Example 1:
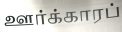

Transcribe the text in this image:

ஊர்க்காரப்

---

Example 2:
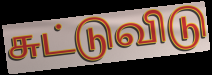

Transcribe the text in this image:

சுட்டுவிடு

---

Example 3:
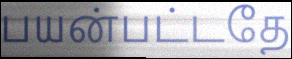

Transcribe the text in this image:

பயன்பட்டதே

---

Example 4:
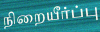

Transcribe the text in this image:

நிறையீர்ப்பு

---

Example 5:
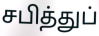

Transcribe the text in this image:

சபித்துப்